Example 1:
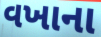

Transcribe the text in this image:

વખાના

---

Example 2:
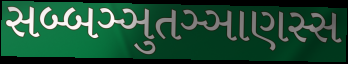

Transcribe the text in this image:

સબ્બઞ્ઞુતઞ્ઞાણસ્સ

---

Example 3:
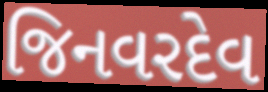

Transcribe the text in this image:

જિનવરદેવ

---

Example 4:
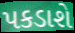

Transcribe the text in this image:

પકડાશે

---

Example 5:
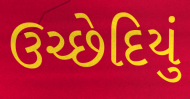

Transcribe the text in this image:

ઉચ્છેદિયું